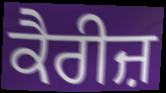
ਕੈਰੀਜ਼